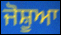
ਜੋਸ਼ੂਆ